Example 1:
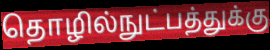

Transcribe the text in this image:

தொழில்நுட்பத்துக்கு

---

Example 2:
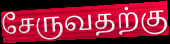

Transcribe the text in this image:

சேருவதற்கு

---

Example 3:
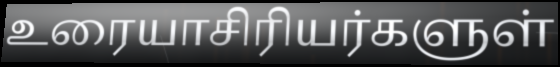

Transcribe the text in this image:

உரையாசிரியர்களுள்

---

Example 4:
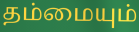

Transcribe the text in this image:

தம்மையும்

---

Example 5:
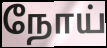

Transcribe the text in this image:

நோய்